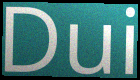
Dui